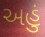
અહું